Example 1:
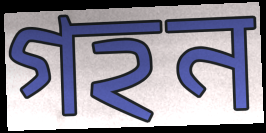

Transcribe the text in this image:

গহন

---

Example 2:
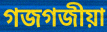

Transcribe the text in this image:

গজগজীয়া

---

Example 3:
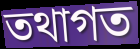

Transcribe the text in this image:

তথাগত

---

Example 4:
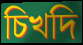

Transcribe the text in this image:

চিখদি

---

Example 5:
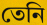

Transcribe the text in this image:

তেনি